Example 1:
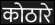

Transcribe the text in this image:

कोठारे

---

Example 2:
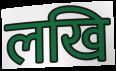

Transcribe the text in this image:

लखि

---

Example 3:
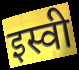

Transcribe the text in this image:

इस्वी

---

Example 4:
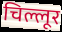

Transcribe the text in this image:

चिल्लूर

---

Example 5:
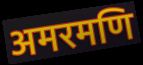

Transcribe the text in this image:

अमरमणि